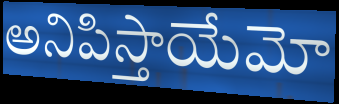
అనిపిస్తాయేమో